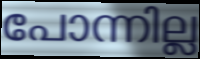
പോന്നില്ല